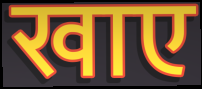
खाए